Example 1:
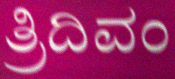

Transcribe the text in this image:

ತ್ರಿದಿವಂ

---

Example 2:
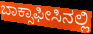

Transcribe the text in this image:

ಬಾಕ್ಸಾಫೀಸಿನಲ್ಲಿ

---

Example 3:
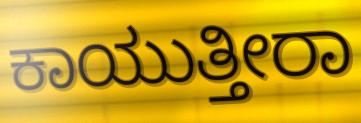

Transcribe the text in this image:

ಕಾಯುತ್ತೀರಾ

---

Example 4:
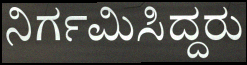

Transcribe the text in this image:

ನಿರ್ಗಮಿಸಿದ್ದರು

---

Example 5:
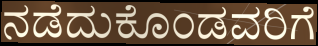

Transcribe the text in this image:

ನಡೆದುಕೊಂಡವರಿಗೆ